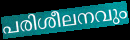
പരിശീലനവും